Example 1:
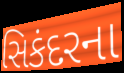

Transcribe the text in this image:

સિકંદરના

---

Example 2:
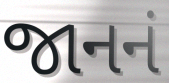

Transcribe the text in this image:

જાનનં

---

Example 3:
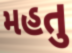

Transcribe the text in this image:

મહતુ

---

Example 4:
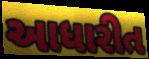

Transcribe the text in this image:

આધારીત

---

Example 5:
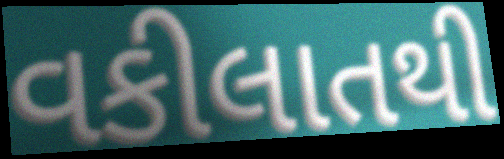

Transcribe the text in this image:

વકીલાતથી